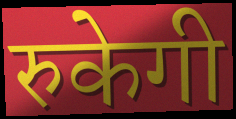
रुकेगी